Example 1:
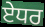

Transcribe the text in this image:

ਏਧਰ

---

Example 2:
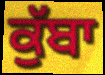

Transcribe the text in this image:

ਕੁੱਬਾ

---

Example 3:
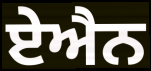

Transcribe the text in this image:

ਏਐਨ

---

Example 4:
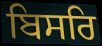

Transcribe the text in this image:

ਬਿਸਰਿ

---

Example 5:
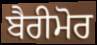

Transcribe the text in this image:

ਬੈਰੀਮੋਰ